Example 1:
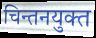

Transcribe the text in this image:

चिन्तनयुक्त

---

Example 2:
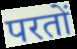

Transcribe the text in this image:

परतों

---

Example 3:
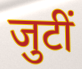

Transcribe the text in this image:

जुटीं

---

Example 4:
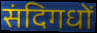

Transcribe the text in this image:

संदिगधों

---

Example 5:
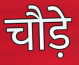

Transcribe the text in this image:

चौड़े